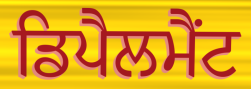
ਡਿਪੈਲਮੈਂਟ